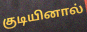
குடியினால்